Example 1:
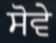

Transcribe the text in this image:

ਸੋਵੇ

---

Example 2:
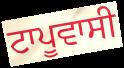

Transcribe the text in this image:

ਟਾਪੂਵਾਸੀ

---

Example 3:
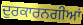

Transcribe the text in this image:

ਦੁਰਕਾਰਨਗੀਆਂ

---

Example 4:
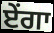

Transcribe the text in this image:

ਏਂਗਾ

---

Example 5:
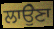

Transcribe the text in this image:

ਲਾਉੇਣਾ